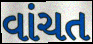
વાંચત